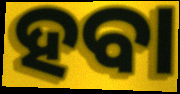
ହବା